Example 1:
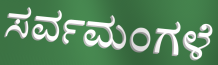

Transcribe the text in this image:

ಸರ್ವಮಂಗಳೆ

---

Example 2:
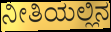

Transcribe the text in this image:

ನೀತಿಯಲ್ಲಿನ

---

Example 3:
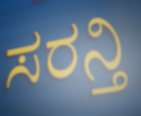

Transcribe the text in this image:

ಸರನ್ತಿ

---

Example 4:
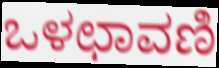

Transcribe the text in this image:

ಒಳಛಾವಣಿ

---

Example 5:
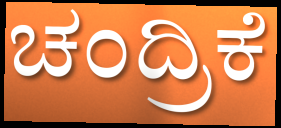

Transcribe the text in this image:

ಚಂದ್ರಿಕೆ